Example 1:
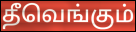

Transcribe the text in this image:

தீவெங்கும்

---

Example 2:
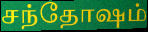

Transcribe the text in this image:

சந்தோஷம்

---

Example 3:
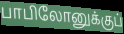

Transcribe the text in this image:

பாபிலோனுக்குப்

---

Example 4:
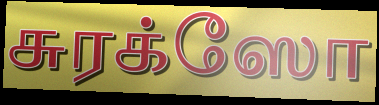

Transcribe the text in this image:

சுரக்ஸோ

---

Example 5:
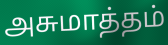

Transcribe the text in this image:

அசுமாத்தம்